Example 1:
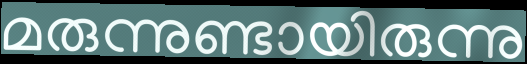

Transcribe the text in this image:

മരുന്നുണ്ടായിരുന്നു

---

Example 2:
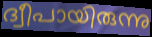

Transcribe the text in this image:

ദ്വീപായിരുന്നു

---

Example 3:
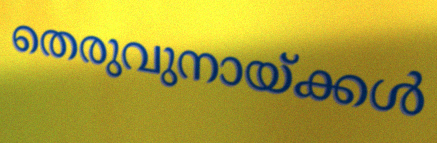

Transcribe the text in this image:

തെരുവുനായ്ക്കൾ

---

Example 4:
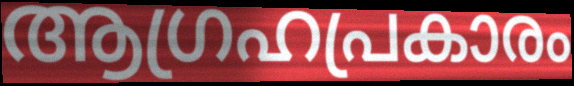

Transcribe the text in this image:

ആഗ്രഹപ്രകാരം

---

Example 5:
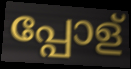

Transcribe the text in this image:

പ്പോള്